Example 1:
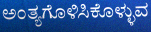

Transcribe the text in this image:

ಅಂತ್ಯಗೊಳಿಸಿಕೊಳ್ಳುವ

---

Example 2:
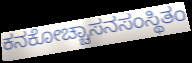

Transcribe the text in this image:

ಕನಕೋಚ್ಚಾಸನಸಂಸ್ಥಿತಂ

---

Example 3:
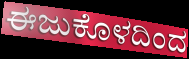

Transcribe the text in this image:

ಈಜುಕೊಳದಿಂದ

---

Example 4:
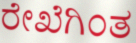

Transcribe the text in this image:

ರೇಖೆಗಿಂತ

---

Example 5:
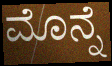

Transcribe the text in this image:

ಮೊನ್ನೆ